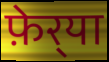
फ़ेर्‍या